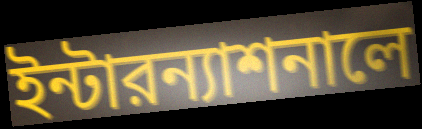
ইন্টারন্যাশনালে